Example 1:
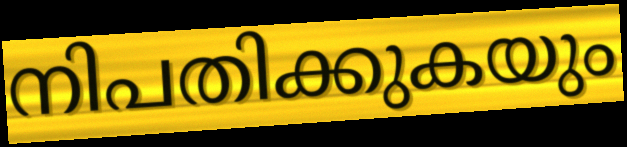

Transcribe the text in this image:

നിപതിക്കുകയും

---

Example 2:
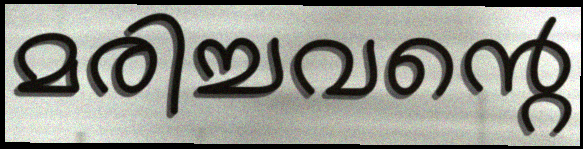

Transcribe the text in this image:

മരിച്ചവന്റെ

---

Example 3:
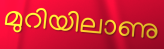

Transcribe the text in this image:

മുറിയിലാണു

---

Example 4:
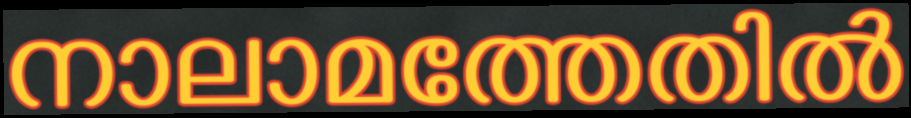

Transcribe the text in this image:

നാലാമത്തേതിൽ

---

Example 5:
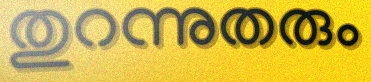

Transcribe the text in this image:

തുറന്നുതരും